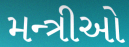
મન્ત્રીઓ